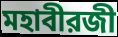
মহাবীরজী